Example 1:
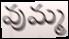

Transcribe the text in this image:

వుమ్మ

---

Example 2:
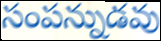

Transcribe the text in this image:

సంపన్నుడవు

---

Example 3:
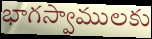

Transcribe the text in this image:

భాగస్వాములకు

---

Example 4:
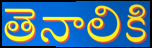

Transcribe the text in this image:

తెనాలికి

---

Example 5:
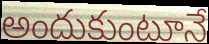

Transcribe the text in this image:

అందుకుంటూనే